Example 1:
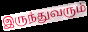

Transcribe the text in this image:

இருந்துவரும்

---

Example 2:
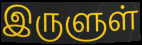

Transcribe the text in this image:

இருளுள்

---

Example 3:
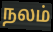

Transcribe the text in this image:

நலம்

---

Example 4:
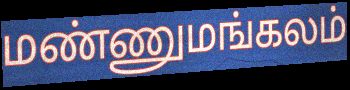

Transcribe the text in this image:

மண்ணுமங்கலம்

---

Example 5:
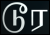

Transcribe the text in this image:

டூர